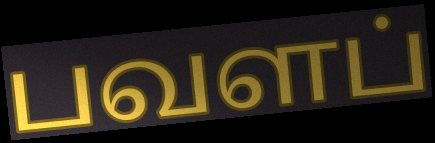
பவளப்